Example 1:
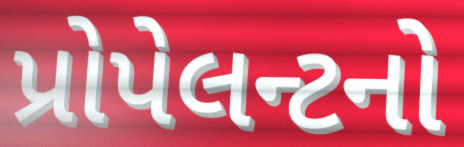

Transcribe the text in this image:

પ્રોપેલન્ટનો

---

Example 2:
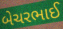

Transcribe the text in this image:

બેચરભાઈ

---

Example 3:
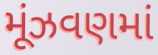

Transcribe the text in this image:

મૂંઝવણમાં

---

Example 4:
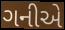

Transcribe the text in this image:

ગનીએ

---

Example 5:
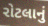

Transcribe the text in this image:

રોટલાનું